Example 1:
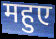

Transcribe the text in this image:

महुए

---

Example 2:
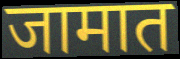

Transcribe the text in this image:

जामात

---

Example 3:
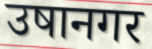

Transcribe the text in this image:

उषानगर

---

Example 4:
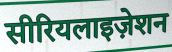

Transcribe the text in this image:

सीरियलाइज़ेशन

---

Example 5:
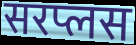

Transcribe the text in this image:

सरप्लस